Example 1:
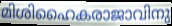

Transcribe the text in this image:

മിശിഹൈകരാജാവിനു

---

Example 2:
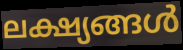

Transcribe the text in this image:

ലക്ഷ്യങ്ങൾ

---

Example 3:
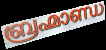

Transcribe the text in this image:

ബ്രഹ്മാണ്ഡ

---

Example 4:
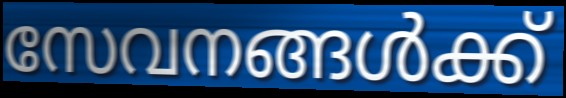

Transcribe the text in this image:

സേവനങ്ങൾക്ക്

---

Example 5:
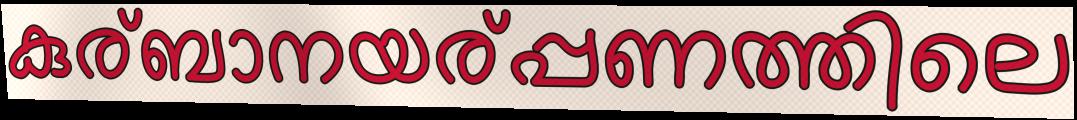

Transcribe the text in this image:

കുര്ബാനയര്പ്പണത്തിലെ